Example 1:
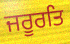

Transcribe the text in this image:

ਜਰੂਰਤਿ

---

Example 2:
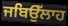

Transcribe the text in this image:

ਜਬਿਉੱਲਾਹ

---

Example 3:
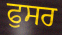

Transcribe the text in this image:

ਫੁਸਰ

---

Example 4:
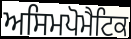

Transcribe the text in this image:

ਅਸਿਮਪੋਮੈਟਿਕ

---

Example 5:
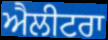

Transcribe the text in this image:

ਐਲੀਟਰਾ